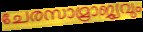
ചേരസാമ്രാജ്യവും